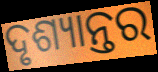
ଦୃଶ୍ୟାନ୍ତର